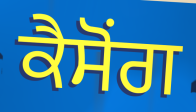
ਕੈਸੋਂਗ